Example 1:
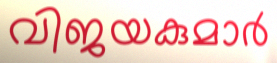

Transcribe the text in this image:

വിജയകുമാർ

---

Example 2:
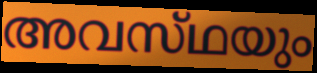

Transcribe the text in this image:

അവസ്‌ഥയും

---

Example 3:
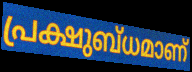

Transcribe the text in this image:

പ്രക്ഷുബ്ധമാണ്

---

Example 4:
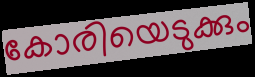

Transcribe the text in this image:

കോരിയെടുക്കും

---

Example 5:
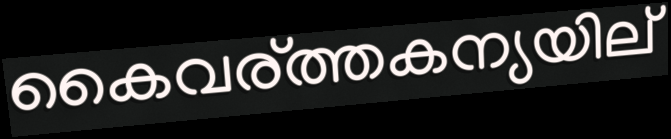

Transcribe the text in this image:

കൈവര്ത്തകന്യയില്